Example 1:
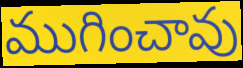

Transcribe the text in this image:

ముగించావు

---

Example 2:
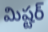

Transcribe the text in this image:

మిష్టర్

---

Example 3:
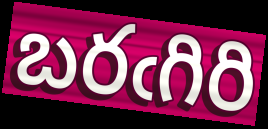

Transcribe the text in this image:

బరఁగిరి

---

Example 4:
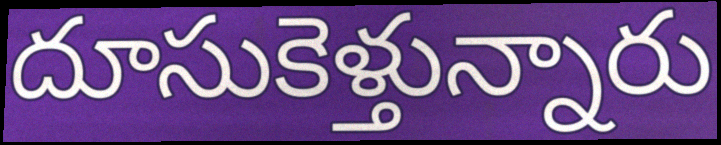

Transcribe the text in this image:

దూసుకెళ్తున్నారు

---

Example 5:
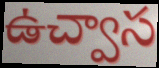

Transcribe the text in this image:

ఉచ్వాస